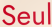
Seul